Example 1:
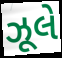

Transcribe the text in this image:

ઝૂલે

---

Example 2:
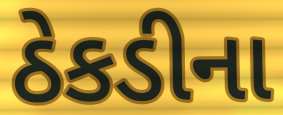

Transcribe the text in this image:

ઠેકડીના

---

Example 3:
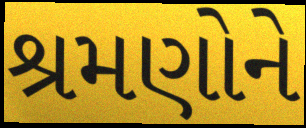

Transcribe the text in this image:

શ્રમણોને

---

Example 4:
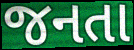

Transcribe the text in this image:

જનતા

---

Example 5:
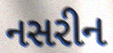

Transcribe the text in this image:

નસરીન